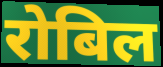
रोबिल